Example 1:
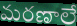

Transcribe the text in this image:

మరణాలే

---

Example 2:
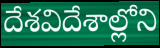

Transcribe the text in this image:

దేశవిదేశాల్లోని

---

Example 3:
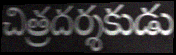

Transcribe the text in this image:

చిత్రదర్శకుడు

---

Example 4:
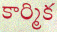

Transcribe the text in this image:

కార్మిక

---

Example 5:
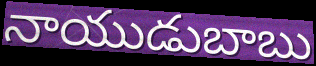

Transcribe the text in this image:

నాయుడుబాబు